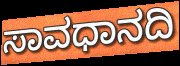
ಸಾವಧಾನದಿ